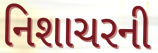
નિશાચરની